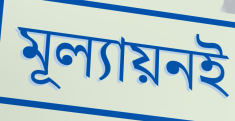
মূল্যায়নই